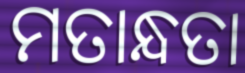
ମତାନ୍ଧତା